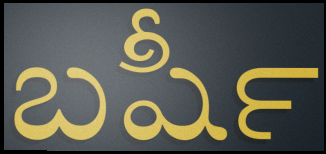
బషీర్‍